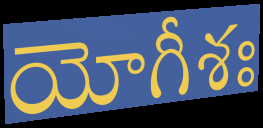
యోగీశః